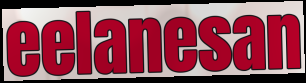
eelanesan